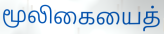
மூலிகையைத்